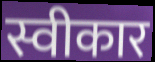
स्वीकार